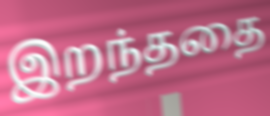
இறந்ததை